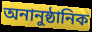
অনানুষ্ঠানিক